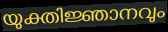
യുക്തിജ്ഞാനവും